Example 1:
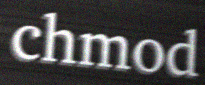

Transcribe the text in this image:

chmod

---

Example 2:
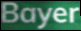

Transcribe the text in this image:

Bayer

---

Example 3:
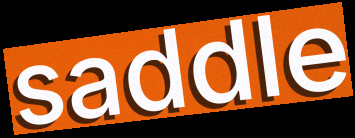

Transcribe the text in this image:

saddle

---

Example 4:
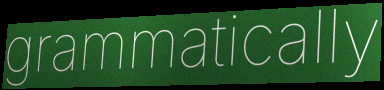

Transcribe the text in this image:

grammatically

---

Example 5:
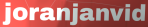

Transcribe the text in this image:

joranjanvid